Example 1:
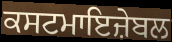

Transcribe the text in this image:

ਕਸਟਮਾਇਜ਼ੇਬਲ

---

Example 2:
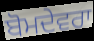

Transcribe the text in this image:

ਬੋਮਦੇਵਰਾ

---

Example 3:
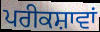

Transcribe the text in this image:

ਪਰੀਕਸ਼ਾਵਾਂ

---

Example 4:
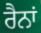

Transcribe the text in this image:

ਰੈਨਾਂ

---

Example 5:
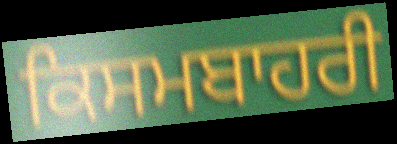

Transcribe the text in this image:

ਕਿਸਮਬਾਹਰੀ